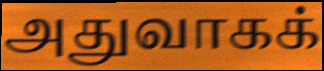
அதுவாகக்